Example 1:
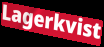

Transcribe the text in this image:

Lagerkvist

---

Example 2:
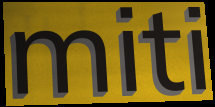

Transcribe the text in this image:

miti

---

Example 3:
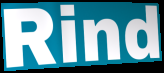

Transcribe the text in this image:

Rind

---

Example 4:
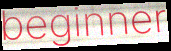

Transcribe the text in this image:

beginner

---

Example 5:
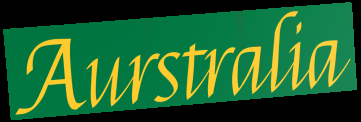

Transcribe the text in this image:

Aurstralia